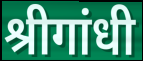
श्रीगांधी